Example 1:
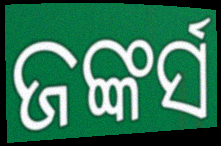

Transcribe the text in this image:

ଜଙ୍କର୍ସ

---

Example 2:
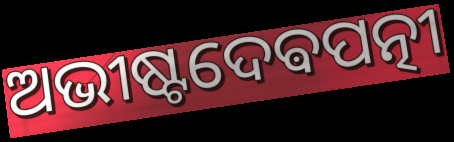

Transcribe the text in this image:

ଅଭୀଷ୍ଟଦେଵପତ୍ନୀ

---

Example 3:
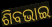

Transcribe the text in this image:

ଶିବଭାଇ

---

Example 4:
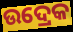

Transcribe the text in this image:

ଉଦ୍ରେକ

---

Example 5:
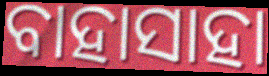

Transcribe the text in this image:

ବାହାସାହା